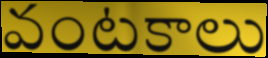
వంటకాలు